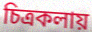
চিত্রকলায়